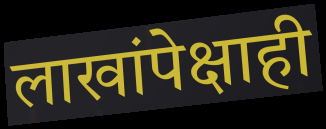
लाखांपेक्षाही